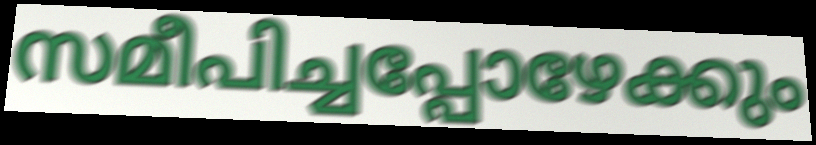
സമീപിച്ചപ്പോഴേക്കും